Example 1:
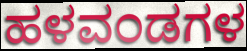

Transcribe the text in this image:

ಹಳವಂಡಗಳ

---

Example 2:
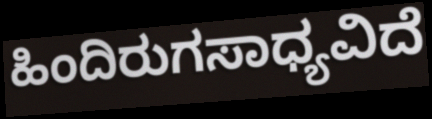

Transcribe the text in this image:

ಹಿಂದಿರುಗಸಾಧ್ಯವಿದೆ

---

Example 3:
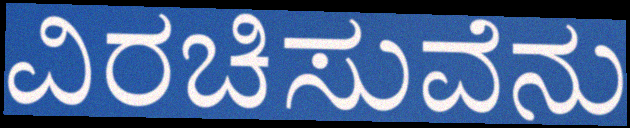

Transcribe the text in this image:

ವಿರಚಿಸುವೆನು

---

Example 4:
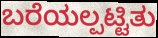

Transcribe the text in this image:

ಬರೆಯಲ್ಪಟ್ಟಿತು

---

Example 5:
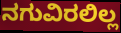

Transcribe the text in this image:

ನಗುವಿರಲಿಲ್ಲ